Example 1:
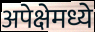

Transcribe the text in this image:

अपेक्षेमध्ये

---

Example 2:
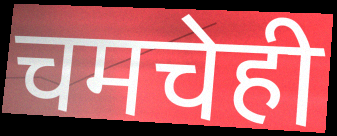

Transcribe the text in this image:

चमचेही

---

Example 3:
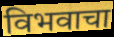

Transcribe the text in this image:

विभवाचा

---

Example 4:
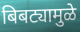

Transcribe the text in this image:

बिबट्यामुळे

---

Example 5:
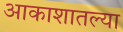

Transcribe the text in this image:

आकाशातल्या